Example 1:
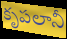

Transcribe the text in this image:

కృపలానీ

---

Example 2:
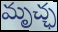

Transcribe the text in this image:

మృచ్ఛ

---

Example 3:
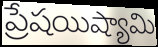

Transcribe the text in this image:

ప్రేషయిష్యామి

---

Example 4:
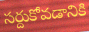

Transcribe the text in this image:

సర్దుకోవడానికి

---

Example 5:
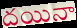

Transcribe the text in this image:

దయినా